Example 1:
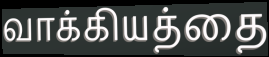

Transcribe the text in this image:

வாக்கியத்தை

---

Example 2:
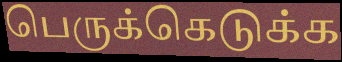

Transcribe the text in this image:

பெருக்கெடுக்க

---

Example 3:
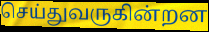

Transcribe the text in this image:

செய்துவருகின்றன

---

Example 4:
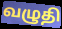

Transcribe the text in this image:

வழுதி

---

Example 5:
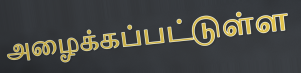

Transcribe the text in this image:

அழைக்கப்பட்டுள்ள